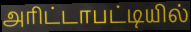
அரிட்டாபட்டியில்